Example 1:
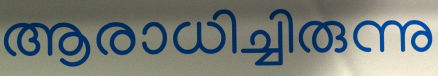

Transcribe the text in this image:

ആരാധിച്ചിരുന്നു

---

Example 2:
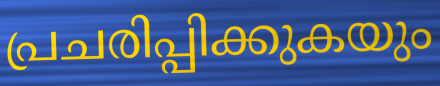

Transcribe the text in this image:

പ്രചരിപ്പിക്കുകയും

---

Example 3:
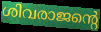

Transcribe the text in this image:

ശിവരാജന്റെ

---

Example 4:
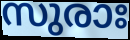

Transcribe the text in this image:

സുരാഃ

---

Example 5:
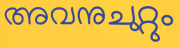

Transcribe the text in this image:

അവനുചുറ്റും